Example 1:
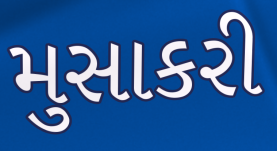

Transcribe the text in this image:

મુસાકરી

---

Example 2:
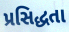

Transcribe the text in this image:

પ્રસિદ્ધતા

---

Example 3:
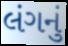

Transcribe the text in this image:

લંગનું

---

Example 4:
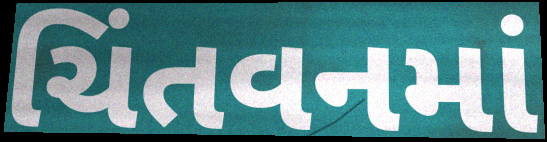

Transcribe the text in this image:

ચિંતવનમાં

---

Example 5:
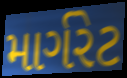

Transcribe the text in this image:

માર્ગરેટ